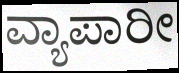
ವ್ಯಾಪಾರೀ